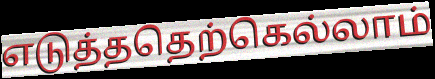
எடுத்ததெற்கெல்லாம்